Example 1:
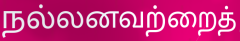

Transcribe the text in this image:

நல்லனவற்றைத்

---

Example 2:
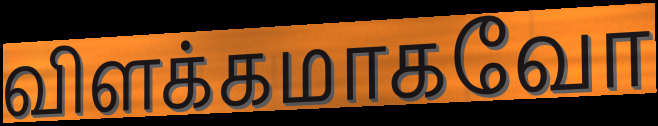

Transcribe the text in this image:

விளக்கமாகவோ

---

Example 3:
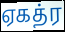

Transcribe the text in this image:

ஏகத்ர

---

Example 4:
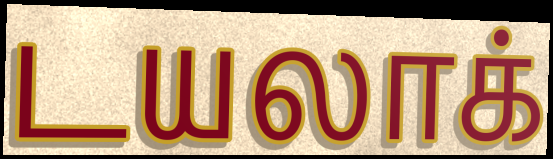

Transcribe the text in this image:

டயலாக்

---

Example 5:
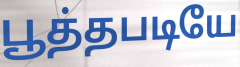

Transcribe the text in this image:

பூத்தபடியே